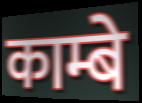
काम्बे